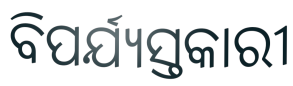
ବିପର୍ଯ୍ୟସ୍ତକାରୀ